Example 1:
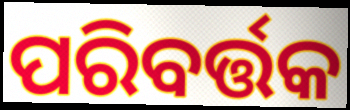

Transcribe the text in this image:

ପରିବର୍ତ୍ତକ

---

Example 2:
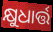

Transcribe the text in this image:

କ୍ଷୁଧାର୍ତ୍ତ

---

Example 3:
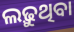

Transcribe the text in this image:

ଲଢ଼ୁଥିବା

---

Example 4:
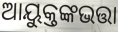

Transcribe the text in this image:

ଆୟୁକ୍ତଙ୍କଭତ୍ତା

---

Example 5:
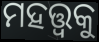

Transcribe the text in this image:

ମହତ୍ତ୍ଵକୁ